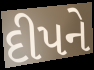
દીપને